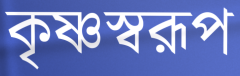
কৃষ্ণস্বরূপ